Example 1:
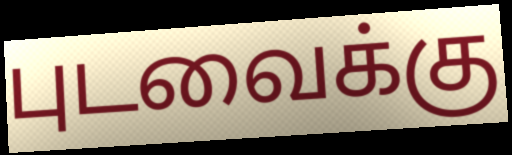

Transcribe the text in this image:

புடவைக்கு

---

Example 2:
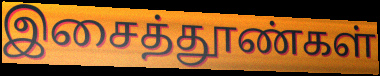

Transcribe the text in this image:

இசைத்தூண்கள்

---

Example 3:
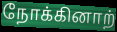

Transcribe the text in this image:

நோக்கினாற்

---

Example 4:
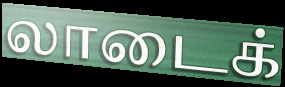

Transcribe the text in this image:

லாடைக்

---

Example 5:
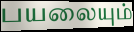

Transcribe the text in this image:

பயலையும்